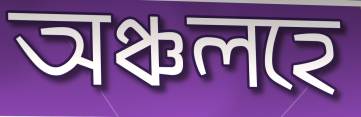
অঞ্চলহে